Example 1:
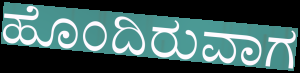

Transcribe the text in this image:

ಹೊಂದಿರುವಾಗ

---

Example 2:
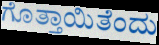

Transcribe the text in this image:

ಗೊತ್ತಾಯಿತೆಂದು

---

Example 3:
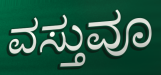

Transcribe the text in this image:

ವಸ್ತುವೂ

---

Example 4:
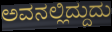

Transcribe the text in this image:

ಅವನಲ್ಲಿದ್ದುದು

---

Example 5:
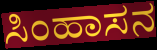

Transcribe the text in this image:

ಸಿಂಹಾಸನ